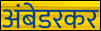
अंबेडरकर